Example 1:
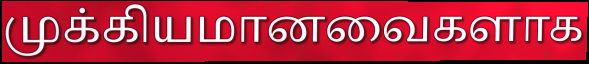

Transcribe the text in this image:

முக்கியமானவைகளாக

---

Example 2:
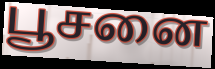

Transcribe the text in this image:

பூசனை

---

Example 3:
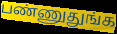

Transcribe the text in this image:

பண்ணுதுங்க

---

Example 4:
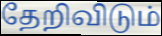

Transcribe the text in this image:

தேறிவிடும்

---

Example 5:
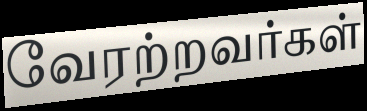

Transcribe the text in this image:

வேரற்றவர்கள்